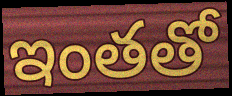
ఇంతతో